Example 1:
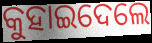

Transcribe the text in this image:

କୁହାଇଦେଲେ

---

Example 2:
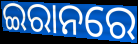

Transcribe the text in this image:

ଇରାନରେ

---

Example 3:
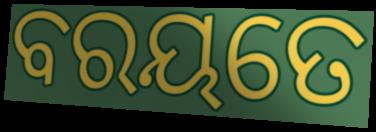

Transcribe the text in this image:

ବରୟତେ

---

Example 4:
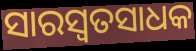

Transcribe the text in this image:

ସାରସ୍ଵତସାଧକ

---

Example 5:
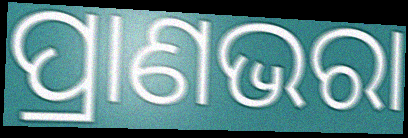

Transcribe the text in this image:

ପ୍ରାଣଭରା